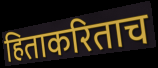
हिताकरिताच